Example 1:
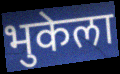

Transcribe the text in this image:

भुकेला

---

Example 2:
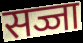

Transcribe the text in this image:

सज्जा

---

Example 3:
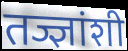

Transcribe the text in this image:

तज्ज्ञांशी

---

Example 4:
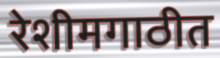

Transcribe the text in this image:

रेशीमगाठीत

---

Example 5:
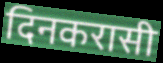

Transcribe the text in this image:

दिनकरासी